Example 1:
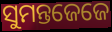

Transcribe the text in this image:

ସୁମନ୍ତଜେଜେ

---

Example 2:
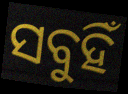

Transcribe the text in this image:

ସବୁହିଁ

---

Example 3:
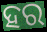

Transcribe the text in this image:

ହର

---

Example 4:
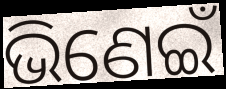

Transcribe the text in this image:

ଭିଣେଇଁ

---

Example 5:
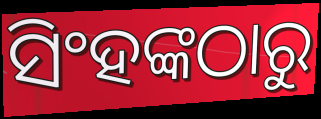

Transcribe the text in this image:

ସିଂହଙ୍କଠାରୁ